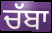
ਚੱਬਾ